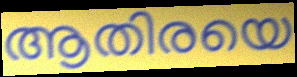
ആതിരയെ